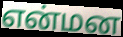
என்மன